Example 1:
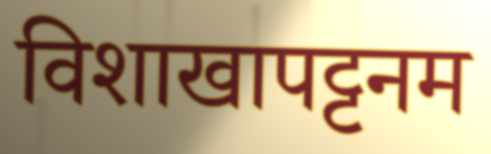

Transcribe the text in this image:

विशाखापट्टनम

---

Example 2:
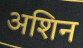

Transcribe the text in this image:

अशिन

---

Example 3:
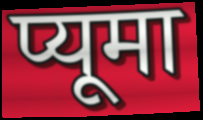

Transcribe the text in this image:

प्यूमा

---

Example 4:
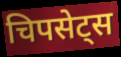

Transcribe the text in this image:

चिपसेट्स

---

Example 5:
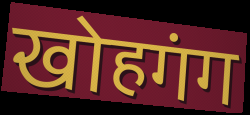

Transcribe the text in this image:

खोहगंग